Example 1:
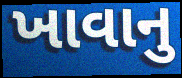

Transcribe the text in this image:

ખાવાનુ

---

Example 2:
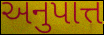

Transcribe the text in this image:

અનુપાત્ત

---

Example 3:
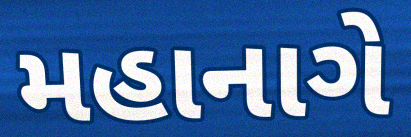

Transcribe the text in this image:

મહાનાગે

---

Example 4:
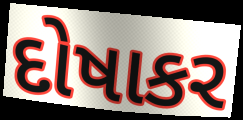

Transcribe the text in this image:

દોષાકર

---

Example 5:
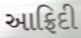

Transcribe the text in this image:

આફ્રિદી